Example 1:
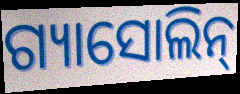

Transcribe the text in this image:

ଗ୍ୟାସୋଲିନ୍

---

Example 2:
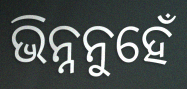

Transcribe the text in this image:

ଭିନ୍ନନୁହେଁ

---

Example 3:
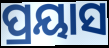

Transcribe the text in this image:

ପ୍ରୟାସ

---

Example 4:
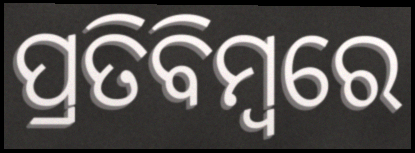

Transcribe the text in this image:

ପ୍ରତିବିମ୍ବରେ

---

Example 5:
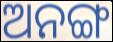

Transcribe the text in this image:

ଅନଙ୍ଗ